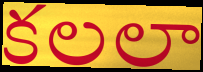
కలలా